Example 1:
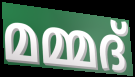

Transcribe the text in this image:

മമ്മദ്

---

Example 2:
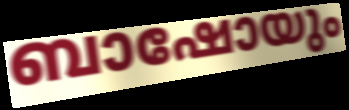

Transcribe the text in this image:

ബാഷോയും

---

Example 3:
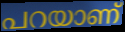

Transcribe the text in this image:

പറയാണ്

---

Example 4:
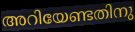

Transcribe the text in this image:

അറിയേണ്ടതിനു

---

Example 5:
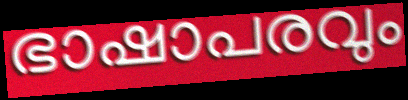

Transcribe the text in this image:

ഭാഷാപരവും